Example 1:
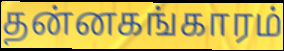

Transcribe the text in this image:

தன்னகங்காரம்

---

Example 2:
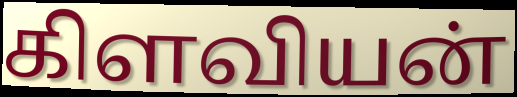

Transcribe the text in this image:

கிளவியன்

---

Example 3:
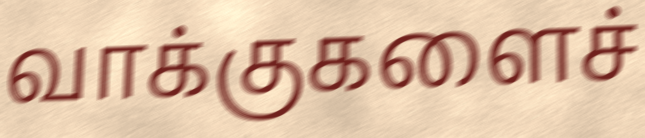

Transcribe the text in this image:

வாக்குகளைச்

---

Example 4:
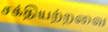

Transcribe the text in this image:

சக்தியற்றவை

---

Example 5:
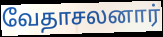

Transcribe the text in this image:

வேதாசலனார்